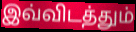
இவ்விடத்தும்